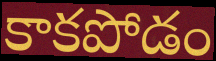
కాకపోడం